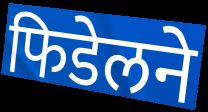
फिडेलने